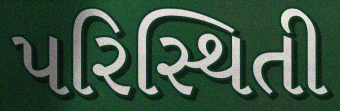
પરિસ્થિતી